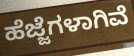
ಹೆಜ್ಜೆಗಳಾಗಿವೆ